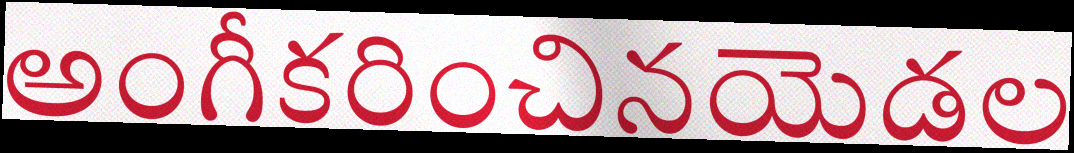
అంగీకరించినయెడల